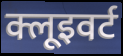
क्लूइवर्ट